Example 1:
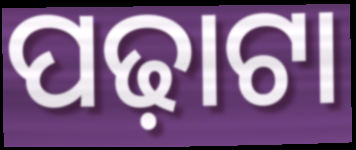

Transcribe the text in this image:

ପଢ଼ାଟା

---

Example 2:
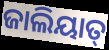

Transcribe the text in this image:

ଜାଲିୟାତ୍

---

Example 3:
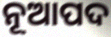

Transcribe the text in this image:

ନୂଆପଦ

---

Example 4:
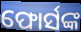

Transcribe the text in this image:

ଫୋର୍ସଙ୍କ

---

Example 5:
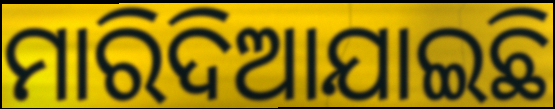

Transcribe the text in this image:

ମାରିଦିଆଯାଇଛି